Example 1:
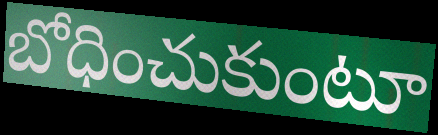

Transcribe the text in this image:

బోధించుకుంటూ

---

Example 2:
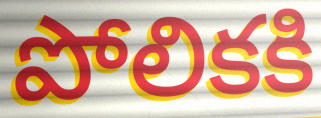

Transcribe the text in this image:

పోలికకి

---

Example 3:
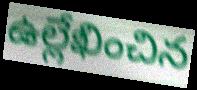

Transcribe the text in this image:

ఉల్లేఖించిన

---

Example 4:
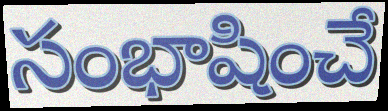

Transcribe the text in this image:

సంభాషించే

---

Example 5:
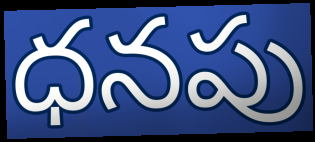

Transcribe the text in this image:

ధనపు